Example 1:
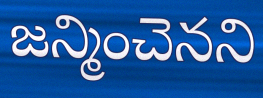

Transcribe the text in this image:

జన్మించెనని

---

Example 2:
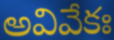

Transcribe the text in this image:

అవివేకః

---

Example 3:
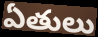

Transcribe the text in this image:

ఏతులు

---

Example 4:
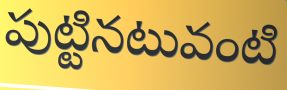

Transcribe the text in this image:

పుట్టినటువంటి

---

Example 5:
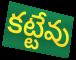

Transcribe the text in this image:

కట్టేవు